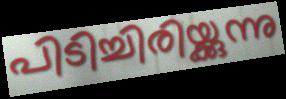
പിടിച്ചിരിയ്ക്കുന്നു